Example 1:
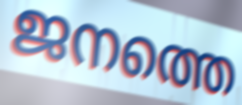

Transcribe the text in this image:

ജനത്തെ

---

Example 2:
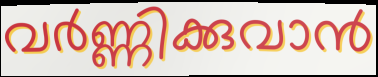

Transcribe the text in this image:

വർണ്ണിക്കുവാൻ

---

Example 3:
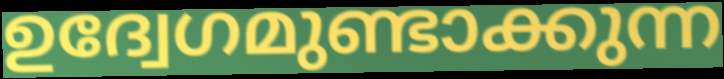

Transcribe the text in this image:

ഉദ്വേഗമുണ്ടാക്കുന്ന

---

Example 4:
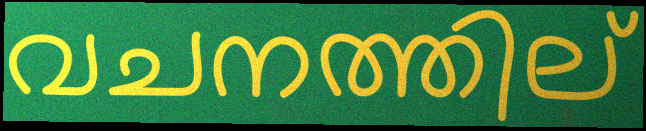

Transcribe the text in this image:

വചനത്തില്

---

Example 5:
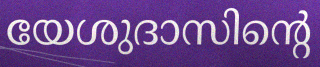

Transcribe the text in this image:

യേശുദാസിന്റെ